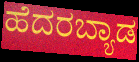
ಹೆದರಬ್ಯಾಡ